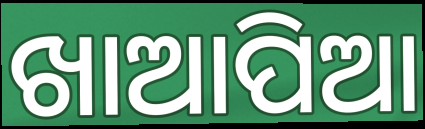
ଖାଆପିଆ